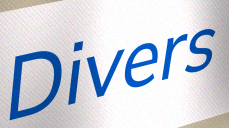
Divers